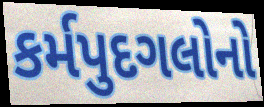
કર્મપુદગલોનો